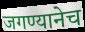
जगण्यानेच